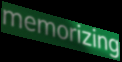
memorizing